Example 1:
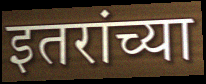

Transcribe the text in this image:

इतरांच्या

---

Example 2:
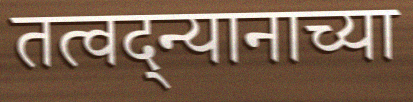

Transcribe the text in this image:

तत्वद्न्यानाच्या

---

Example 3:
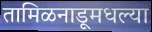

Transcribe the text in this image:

तामिळनाडूमधल्या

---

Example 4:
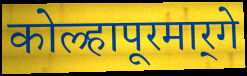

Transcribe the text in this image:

कोल्हापूरमार्गे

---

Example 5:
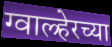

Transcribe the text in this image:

ग्वाल्हेरच्या